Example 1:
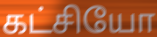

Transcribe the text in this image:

கட்சியோ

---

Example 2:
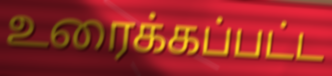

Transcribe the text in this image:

உரைக்கப்பட்ட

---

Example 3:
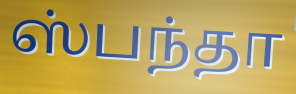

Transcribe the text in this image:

ஸ்பந்தா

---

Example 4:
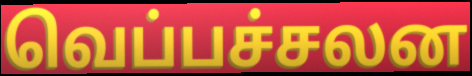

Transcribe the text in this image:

வெப்பச்சலன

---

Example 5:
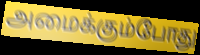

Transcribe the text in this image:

அமைக்கும்போது